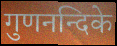
गुणनन्दिके